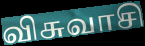
விசுவாசி